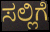
ಸಲ್ಲಿಗೆ